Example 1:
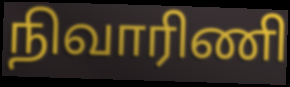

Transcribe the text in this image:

நிவாரிணி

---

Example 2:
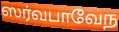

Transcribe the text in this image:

ஸர்வபாவேந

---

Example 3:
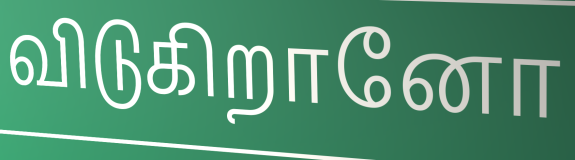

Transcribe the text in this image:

விடுகிறானோ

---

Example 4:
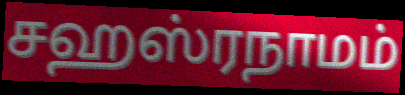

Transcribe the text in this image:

சஹஸ்ரநாமம்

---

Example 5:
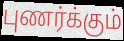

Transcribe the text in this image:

புணர்க்கும்